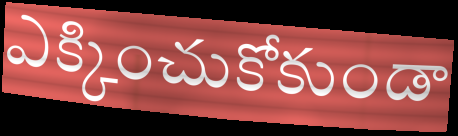
ఎక్కించుకోకుండా